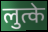
लुत्के